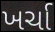
ખર્ચા